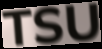
TSU